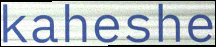
kaheshe